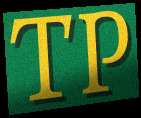
TP